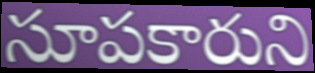
సూపకారుని